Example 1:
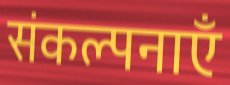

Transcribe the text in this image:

संकल्पनाएँ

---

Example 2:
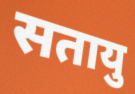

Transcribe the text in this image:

सतायु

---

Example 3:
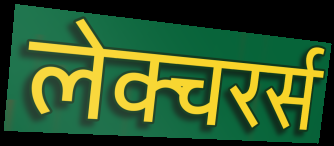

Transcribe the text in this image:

लेक्चरर्स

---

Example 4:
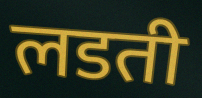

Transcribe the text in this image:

लडती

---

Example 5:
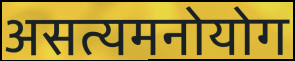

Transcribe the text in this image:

असत्यमनोयोग